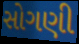
સોગણી